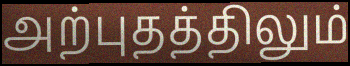
அற்புதத்திலும்